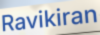
Ravikiran